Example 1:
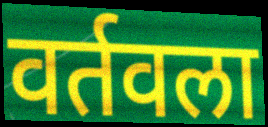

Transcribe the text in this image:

वर्तवला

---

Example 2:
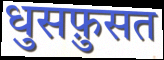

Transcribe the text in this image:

धुसफ़ुसत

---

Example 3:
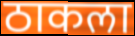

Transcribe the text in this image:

ठाकला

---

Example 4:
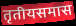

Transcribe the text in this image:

तृतीयसमास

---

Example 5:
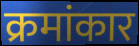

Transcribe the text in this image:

क्रमांकार